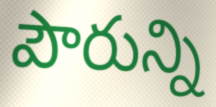
పౌరున్ని